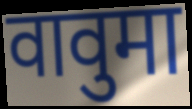
वावुमा